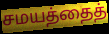
சமயத்தைத்